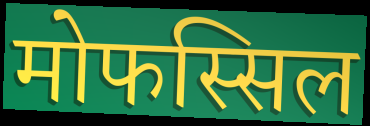
मोफस्सिल